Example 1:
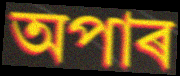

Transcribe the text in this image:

অপাৰ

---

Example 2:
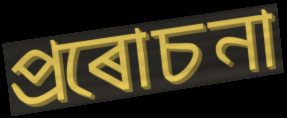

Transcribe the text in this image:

প্ৰৰোচনা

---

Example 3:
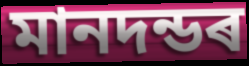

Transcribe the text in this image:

মানদন্ডৰ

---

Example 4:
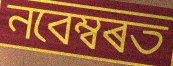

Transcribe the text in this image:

নবেম্বৰত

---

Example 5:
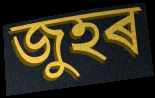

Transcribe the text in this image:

জুহৰ